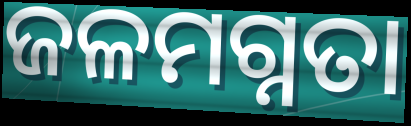
ଜଳମଗ୍ନତା